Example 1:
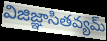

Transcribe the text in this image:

విజిజ్ఞాసితవ్యమ్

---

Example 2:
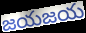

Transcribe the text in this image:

జయజయ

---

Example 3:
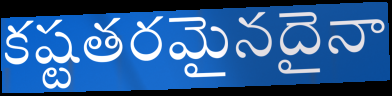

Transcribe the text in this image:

కష్టతరమైనదైనా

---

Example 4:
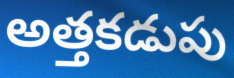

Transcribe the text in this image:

అత్తకడుపు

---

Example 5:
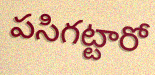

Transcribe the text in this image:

పసిగట్టారో